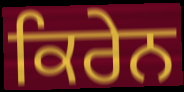
ਕਿਰੇਨ